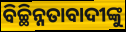
ବିଚ୍ଛିନ୍ନତାବାଦୀଙ୍କୁ